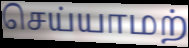
செய்யாமற்